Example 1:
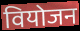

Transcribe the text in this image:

वियोजन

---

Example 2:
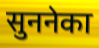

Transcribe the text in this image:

सुननेका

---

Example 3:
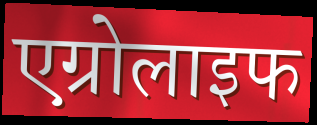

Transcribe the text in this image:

एग्रोलाइफ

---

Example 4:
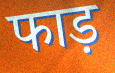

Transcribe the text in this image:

फाड़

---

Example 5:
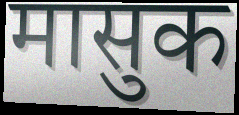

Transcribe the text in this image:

मासुक